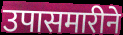
उपासमारीने